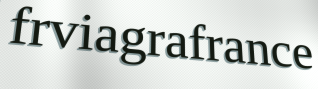
frviagrafrance